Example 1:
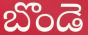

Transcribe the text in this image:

బొండె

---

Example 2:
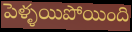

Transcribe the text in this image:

పెళ్ళయిపోయింది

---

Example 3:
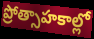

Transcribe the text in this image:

ప్రోత్సాహకాల్లో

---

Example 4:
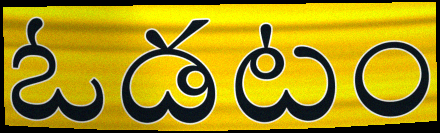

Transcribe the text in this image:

ఓడటం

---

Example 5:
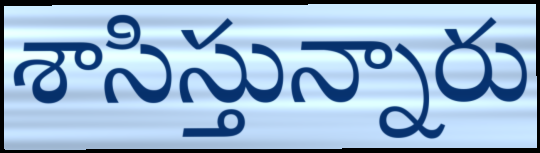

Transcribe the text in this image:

శాసిస్తున్నారు